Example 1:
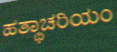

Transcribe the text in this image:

ಹತ್ಥಾಚರಿಯಂ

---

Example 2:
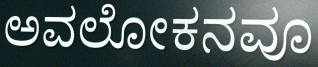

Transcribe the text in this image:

ಅವಲೋಕನವೂ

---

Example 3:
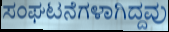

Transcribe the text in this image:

ಸಂಘಟನೆಗಳಾಗಿದ್ದವು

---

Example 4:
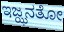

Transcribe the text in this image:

ಇಜ್ಝನತೋ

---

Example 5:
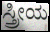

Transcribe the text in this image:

ಸ್ತ್ರೀಯ